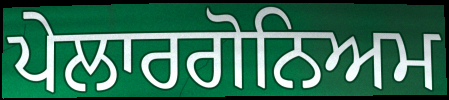
ਪੇਲਾਰਗੋਨਿਅਮ